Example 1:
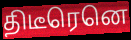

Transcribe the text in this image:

திடீரெனெ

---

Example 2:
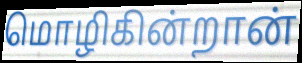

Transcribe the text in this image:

மொழிகின்றான்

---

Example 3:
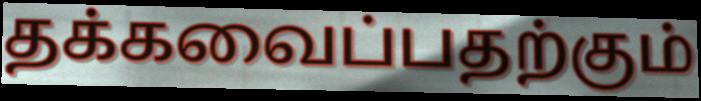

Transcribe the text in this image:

தக்கவைப்பதற்கும்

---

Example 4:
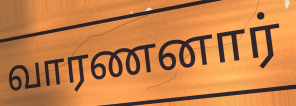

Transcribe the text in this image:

வாரணனார்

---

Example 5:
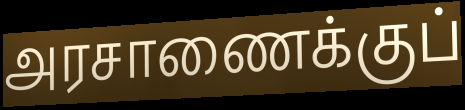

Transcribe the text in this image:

அரசாணைக்குப்